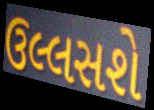
ઉલ્લસશે